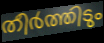
തീർത്തിടും